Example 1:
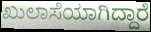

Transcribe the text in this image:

ಖುಲಾಸೆಯಾಗಿದ್ದಾರೆ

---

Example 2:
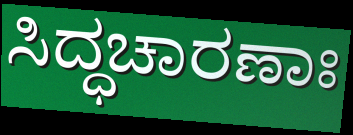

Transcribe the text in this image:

ಸಿದ್ಧಚಾರಣಾಃ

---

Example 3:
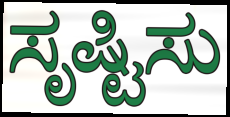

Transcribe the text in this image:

ಸೃಷ್ಟಿಸು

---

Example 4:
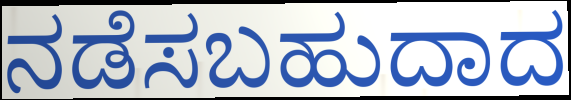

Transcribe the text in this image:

ನಡೆಸಬಹುದಾದ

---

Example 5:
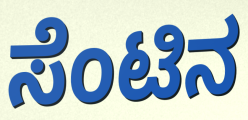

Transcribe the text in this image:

ಸೆಂಟಿನ